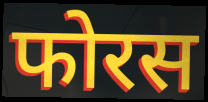
फोरस